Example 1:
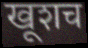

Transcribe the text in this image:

खूशच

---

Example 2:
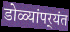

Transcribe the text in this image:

डोळ्यांपर्यंत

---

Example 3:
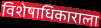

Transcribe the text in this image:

विशेषाधिकाराला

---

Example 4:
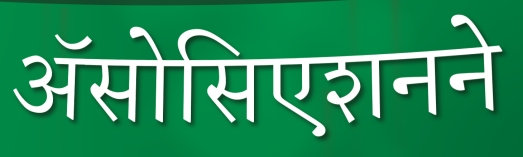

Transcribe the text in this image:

ॲसोसिएशनने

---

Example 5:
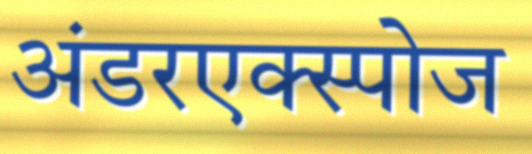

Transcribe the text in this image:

अंडरएक्स्पोज